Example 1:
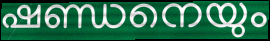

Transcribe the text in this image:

ഷണ്ഡനെയും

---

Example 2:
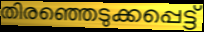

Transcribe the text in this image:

തിരഞ്ഞെടുക്കപ്പെട്ട്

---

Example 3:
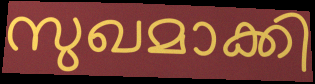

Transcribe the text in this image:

സുഖമാക്കി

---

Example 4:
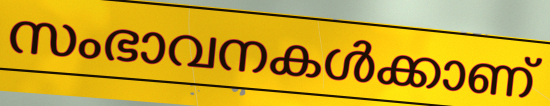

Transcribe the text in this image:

സംഭാവനകൾക്കാണ്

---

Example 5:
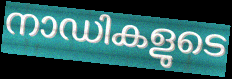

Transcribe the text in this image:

നാഡികളുടെ